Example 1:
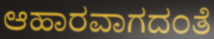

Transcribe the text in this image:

ಆಹಾರವಾಗದಂತೆ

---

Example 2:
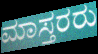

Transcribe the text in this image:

ಮಾಸ್ತರರು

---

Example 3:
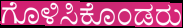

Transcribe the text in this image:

ಗೊಳಿಸಿಕೊಂಡರು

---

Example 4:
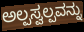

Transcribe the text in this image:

ಅಲ್ಪಸ್ವಲ್ಪವನ್ನು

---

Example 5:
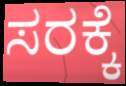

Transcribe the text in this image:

ಸರಕ್ಕೆ